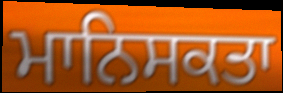
ਮਾਨਿਸਕਤਾ